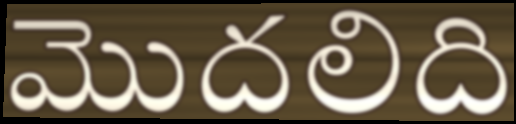
మొదలిది